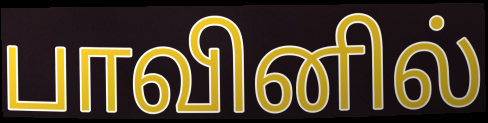
பாவினில்